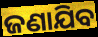
ଜଣାଯିବ